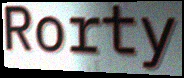
Rorty